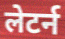
लेटर्न